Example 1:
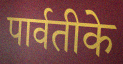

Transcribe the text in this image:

पार्वतीके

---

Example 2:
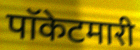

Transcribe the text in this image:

पॉकेटमारी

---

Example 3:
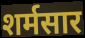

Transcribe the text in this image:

शर्मसार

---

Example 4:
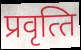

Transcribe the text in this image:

प्रवृत्‍ति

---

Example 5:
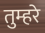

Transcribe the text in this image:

तुम्हरे